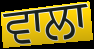
ਵਾਲਾ